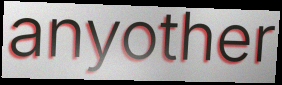
anyother